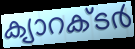
ക്യാറക്ടർ